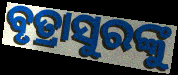
ବୃତ୍ରାସୁରଙ୍କୁ